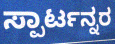
ಸ್ಪಾರ್ಟನ್ನರ